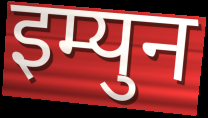
इम्‍युन